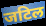
जटिल